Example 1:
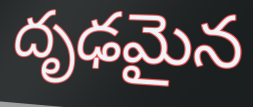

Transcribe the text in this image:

దృఢమైన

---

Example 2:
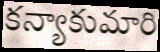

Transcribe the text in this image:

కన్యాకుమారి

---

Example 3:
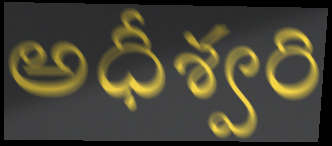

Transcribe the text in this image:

అధీశ్వరి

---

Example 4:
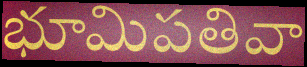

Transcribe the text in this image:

భూమిపతివా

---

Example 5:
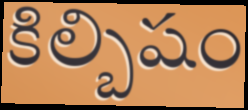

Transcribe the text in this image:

కిల్బిషం